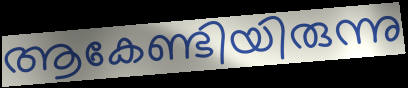
ആകേണ്ടിയിരുന്നു